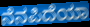
ನೆನಪಿದೆಯಾ